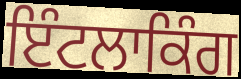
ਇੰਟਲਾਕਿੰਗ